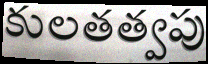
కులతత్వపు